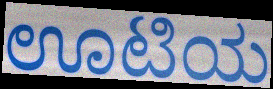
ಊಟಿಯ